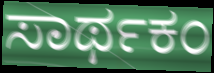
ಸಾರ್ಥಕಂ